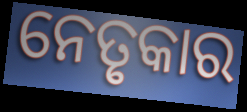
ନେତୃକାର